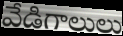
వేడిగాలులు